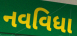
નવવિધા